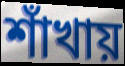
শাঁখায়